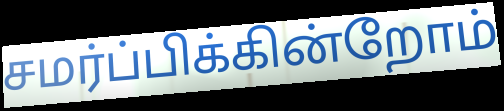
சமர்ப்பிக்கின்றோம்